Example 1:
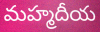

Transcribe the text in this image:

మహ్మదీయ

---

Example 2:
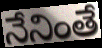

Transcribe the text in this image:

నేనింతే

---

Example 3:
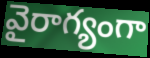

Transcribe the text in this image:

వైరాగ్యంగా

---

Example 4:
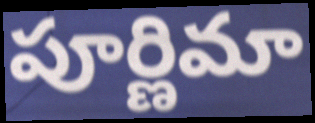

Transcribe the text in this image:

పూర్ణిమా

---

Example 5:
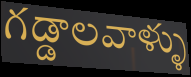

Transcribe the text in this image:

గడ్డాలవాళ్ళు